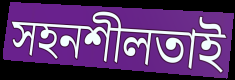
সহনশীলতাই